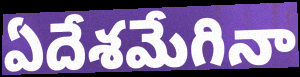
ఏదేశమేగినా